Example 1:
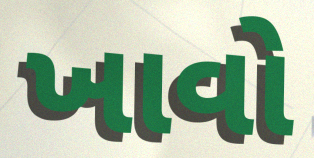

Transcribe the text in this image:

ખાવો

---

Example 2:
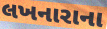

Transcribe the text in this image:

લખનારાના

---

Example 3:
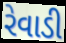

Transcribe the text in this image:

રેવાડી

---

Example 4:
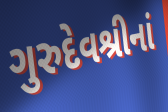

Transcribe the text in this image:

ગુરુદેવશ્રીનાં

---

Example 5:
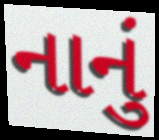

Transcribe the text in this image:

નાનું